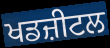
ਖਡਜ਼ੀਟਲ